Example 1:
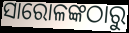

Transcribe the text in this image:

ସାରୋଳଙ୍କଠାରୁ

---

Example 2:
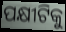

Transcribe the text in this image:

ପକ୍ଷୀଟିକୁ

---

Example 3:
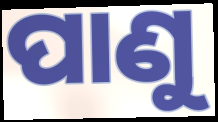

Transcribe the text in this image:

ପାଣୁ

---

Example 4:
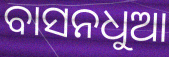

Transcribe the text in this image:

ବାସନଧୁଆ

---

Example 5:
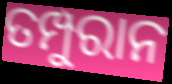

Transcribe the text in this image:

ତମ୍ପୁରାନ